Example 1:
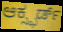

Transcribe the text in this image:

ಆಕ್ಸ್ಫರ್ಡ್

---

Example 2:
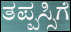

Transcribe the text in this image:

ತಪ್ಪಸ್ಸಿಗೆ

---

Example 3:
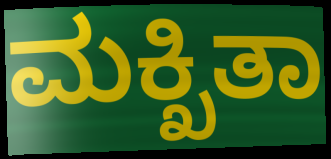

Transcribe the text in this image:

ಮಕ್ಖಿತಾ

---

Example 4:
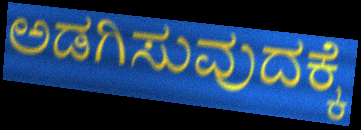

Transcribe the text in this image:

ಅಡಗಿಸುವುದಕ್ಕೆ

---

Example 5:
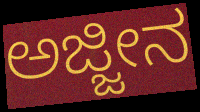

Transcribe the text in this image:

ಅಜ್ಜೀನ